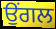
ਉੰਗਲ